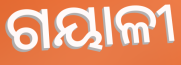
ଗୟାଳୀ